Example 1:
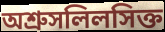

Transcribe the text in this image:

অশ্রুসলিলসিক্ত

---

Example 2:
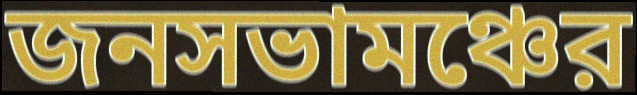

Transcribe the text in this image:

জনসভামঞ্চের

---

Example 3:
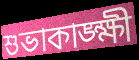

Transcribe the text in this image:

শুভাকাঙ্ক্ষী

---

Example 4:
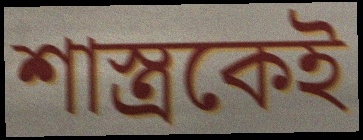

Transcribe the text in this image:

শাস্ত্রকেই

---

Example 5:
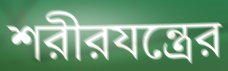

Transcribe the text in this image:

শরীরযন্ত্রের